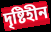
দৃষ্টিহীন